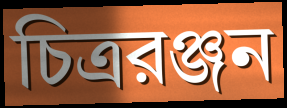
চিত্ররঞ্জন